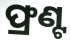
ଫ୍ରଣ୍ଟ